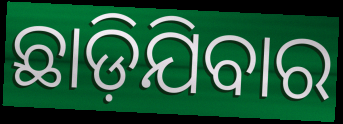
ଛାଡ଼ିଯିବାର